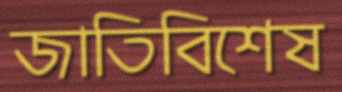
জাতিবিশেষ